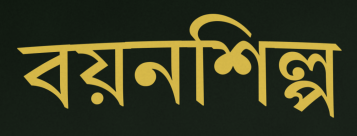
বয়নশিল্প